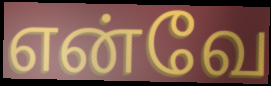
என்வே